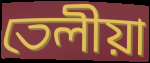
তেলীয়া